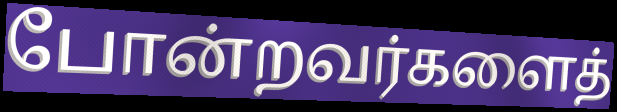
போன்றவர்களைத்